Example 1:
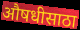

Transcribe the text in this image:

औषधीसाठा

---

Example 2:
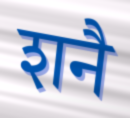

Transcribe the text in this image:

शनै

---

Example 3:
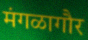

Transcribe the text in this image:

मंगळागौर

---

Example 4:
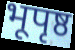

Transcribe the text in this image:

भूपृष्ठ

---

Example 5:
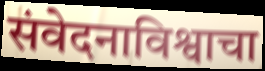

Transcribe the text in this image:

संवेदनाविश्वाचा